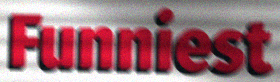
Funniest